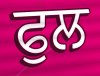
ਫੁਲ